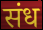
संध